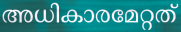
അധികാരമേറ്റത്